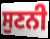
ਸੁਣਨੀ